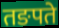
तङपते